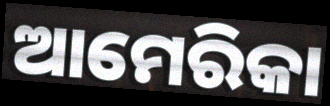
ଆମେରିକା